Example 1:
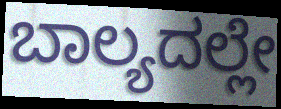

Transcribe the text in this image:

ಬಾಲ್ಯದಲ್ಲೇ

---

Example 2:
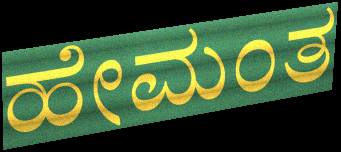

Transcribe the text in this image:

ಹೇಮಂತ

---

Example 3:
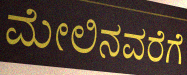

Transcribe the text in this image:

ಮೇಲಿನವರೆಗೆ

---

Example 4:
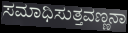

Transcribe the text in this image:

ಸಮಾಧಿಸುತ್ತವಣ್ಣನಾ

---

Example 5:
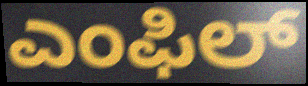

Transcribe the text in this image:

ಎಂಫಿಲ್